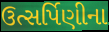
ઉત્સર્પિણીના